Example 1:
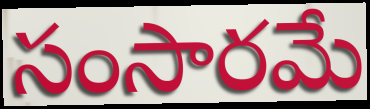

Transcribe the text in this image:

సంసారమే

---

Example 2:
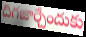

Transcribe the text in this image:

దిగజార్చేందుకు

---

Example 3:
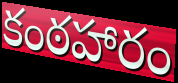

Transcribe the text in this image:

కంఠహారం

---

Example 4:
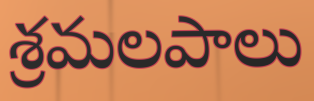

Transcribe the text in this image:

శ్రమలపాలు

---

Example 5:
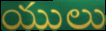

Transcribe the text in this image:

యులు